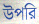
উপরি